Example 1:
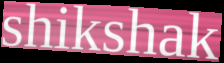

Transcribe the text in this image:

shikshak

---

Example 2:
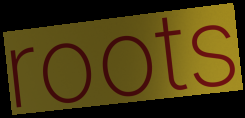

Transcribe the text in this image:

roots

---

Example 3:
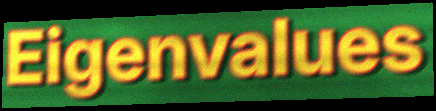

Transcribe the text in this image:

Eigenvalues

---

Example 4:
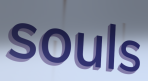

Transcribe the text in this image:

souls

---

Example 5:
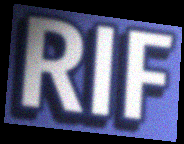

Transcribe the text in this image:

RIF